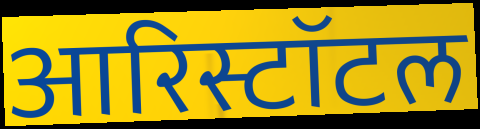
आरिस्टॉटल